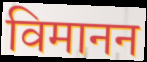
विमानन